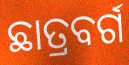
ଛାତ୍ରବର୍ଗ